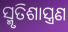
ସ୍ମୃତିଶାସ୍ତ୍ରଣ